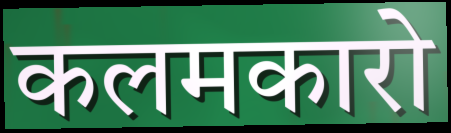
कलमकारो